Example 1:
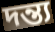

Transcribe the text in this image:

দন্ত্য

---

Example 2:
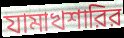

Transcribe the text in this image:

যামাখশারির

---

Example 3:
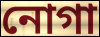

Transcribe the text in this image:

নোগা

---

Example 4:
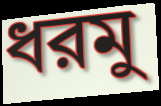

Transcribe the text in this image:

ধরমু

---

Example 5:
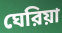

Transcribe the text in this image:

ঘেরিয়া